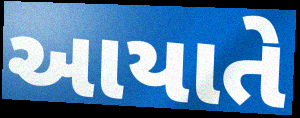
આયાતે